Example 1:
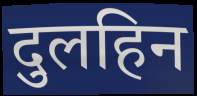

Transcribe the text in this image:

दुलहिन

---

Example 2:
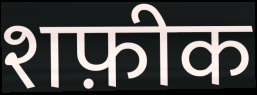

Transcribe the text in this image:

शफ़ीक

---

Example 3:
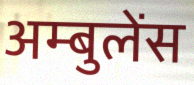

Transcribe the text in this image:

अम्बुलेंस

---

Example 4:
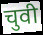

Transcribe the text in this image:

चुवी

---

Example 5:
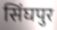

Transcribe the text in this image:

सिंघपुर